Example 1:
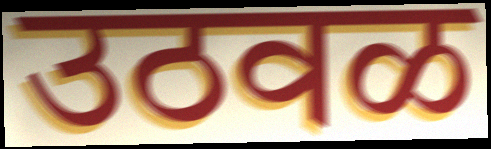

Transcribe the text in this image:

उठवळ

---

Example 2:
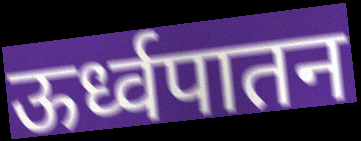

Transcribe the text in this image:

ऊर्ध्वपातन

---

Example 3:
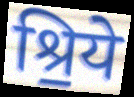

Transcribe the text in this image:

श्रि॒ये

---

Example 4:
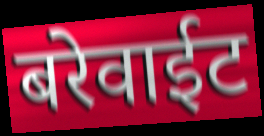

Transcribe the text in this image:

बरेवाईट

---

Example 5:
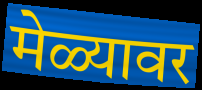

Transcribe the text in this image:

मेळ्यावर